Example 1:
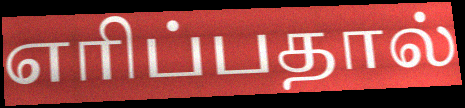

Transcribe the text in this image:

எரிப்பதால்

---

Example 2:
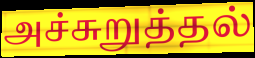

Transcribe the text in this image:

அச்சுறுத்தல்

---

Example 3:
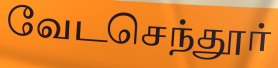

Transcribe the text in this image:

வேடசெந்தூர்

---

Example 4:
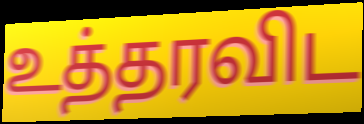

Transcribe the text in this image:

உத்தரவிட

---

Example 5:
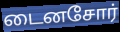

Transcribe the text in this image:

டைனசோர்